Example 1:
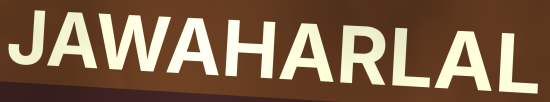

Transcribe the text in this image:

JAWAHARLAL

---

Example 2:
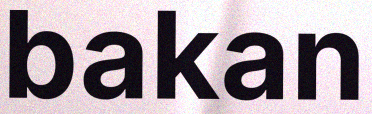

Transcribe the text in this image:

bakan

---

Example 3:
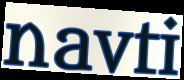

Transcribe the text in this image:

navti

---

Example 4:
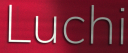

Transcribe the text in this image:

Luchi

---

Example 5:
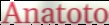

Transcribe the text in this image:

Anatoto